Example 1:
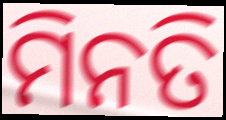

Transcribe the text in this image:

ମିନତି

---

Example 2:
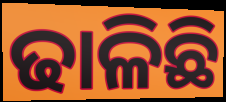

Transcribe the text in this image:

ଢାଳିଛି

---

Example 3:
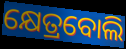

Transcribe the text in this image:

କ୍ଷେତ୍ରବୋଲି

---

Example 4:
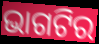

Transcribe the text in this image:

ଭାଗଟିର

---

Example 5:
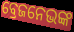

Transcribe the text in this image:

ବ୍ରେଜନେଭଙ୍କ